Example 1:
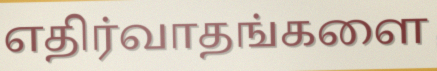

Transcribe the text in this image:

எதிர்வாதங்களை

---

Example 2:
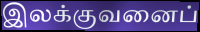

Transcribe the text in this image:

இலக்குவனைப்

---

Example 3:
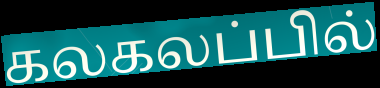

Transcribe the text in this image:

கலகலப்பில்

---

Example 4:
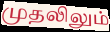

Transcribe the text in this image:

முதலிலும்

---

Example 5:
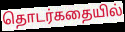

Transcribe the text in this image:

தொடர்கதையில்